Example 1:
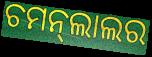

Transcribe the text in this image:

ଚମନ୍‍ଲାଲର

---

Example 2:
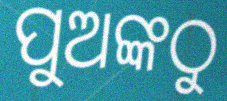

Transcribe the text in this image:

ପୁଅଙ୍କଠୁ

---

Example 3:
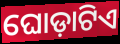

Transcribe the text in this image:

ଘୋଡ଼ାଟିଏ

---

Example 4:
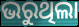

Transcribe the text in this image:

ଭରୁଥିଲା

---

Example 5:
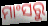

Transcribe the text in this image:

ମାଂସରୁ